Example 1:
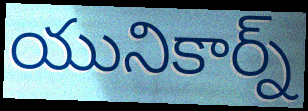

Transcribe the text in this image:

యునికార్న్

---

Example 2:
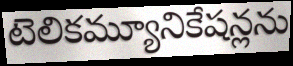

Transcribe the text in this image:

టెలికమ్యూనికేషన్లను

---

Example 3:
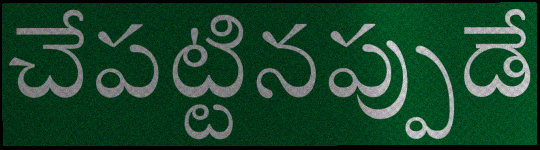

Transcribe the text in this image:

చేపట్టినప్పుడే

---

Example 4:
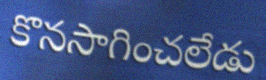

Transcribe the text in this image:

కొనసాగించలేడు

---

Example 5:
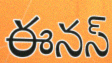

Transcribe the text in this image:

ఈనస్